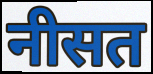
नीसत